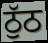
ਠੁੱਠ